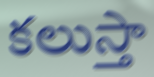
కలుస్తా